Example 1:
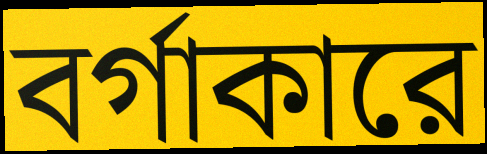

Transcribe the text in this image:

বর্গাকারে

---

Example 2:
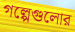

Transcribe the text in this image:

গল্পেগুলোর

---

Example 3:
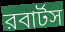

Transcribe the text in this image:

রবার্টস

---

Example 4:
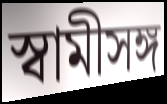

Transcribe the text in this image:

স্বামীসঙ্গ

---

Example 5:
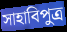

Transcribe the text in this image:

সাহাবিপুত্র